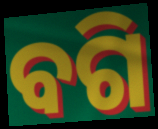
ବଗି